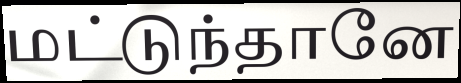
மட்டுந்தானே